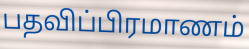
பதவிப்பிரமாணம்